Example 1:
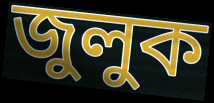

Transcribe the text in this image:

জুলুক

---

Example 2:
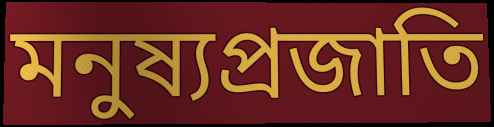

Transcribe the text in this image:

মনুষ্যপ্রজাতি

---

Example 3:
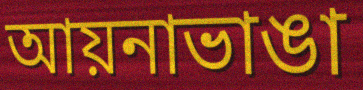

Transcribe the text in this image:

আয়নাভাঙা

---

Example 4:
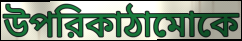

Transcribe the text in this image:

উপরিকাঠামোকে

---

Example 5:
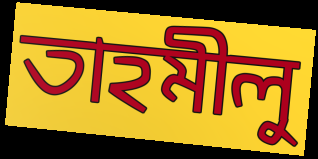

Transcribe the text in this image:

তাহমীলু